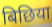
बिछिया